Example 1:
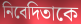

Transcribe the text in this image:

নিবেদিতাকে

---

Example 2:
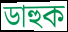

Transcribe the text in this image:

ডাহুক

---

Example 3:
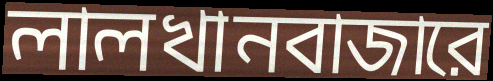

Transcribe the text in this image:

লালখানবাজারে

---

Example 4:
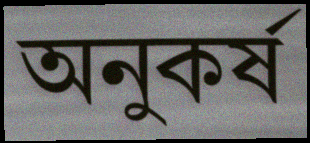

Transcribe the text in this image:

অনুকর্ষ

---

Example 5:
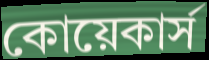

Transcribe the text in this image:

কোয়েকার্স